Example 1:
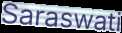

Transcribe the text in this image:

Saraswati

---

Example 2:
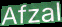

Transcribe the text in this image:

Afzal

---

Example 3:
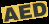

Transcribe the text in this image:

AED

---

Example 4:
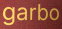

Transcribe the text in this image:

garbo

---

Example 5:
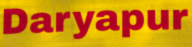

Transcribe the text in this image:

Daryapur